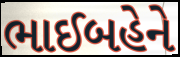
ભાઈબહેને